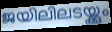
ജയിലിലടയ്ക്കും